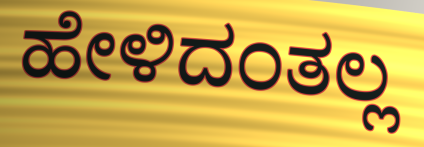
ಹೇಳಿದಂತಲ್ಲ